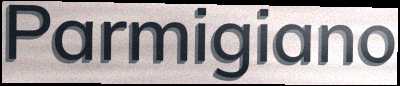
Parmigiano